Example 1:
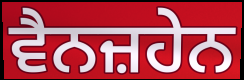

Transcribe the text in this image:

ਵੈਨਜ਼ਹੇਨ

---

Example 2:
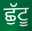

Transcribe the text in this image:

ਛੁੱਟੂ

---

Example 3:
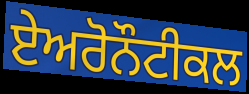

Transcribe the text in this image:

ਏਅਰੋਨੌਟੀਕਲ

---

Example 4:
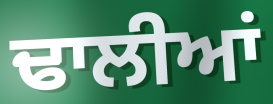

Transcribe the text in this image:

ਢਾਲੀਆਂ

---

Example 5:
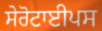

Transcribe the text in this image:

ਸੇਰੋਟਾਈਪਸ